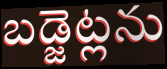
బడ్జెట్లను